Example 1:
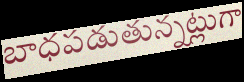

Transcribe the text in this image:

బాధపడుతున్నట్లుగా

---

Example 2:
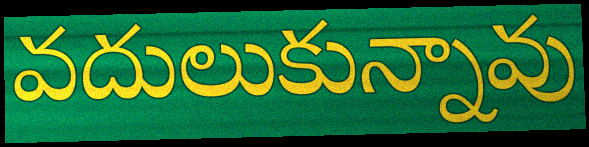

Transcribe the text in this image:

వదులుకున్నావు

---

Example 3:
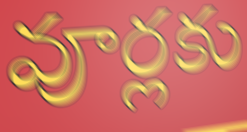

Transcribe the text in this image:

వూర్లకు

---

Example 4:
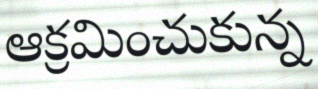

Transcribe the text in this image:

ఆక్రమించుకున్న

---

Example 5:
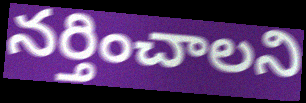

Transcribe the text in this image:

నర్తించాలని